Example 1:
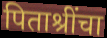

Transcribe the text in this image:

पिताश्रींचा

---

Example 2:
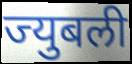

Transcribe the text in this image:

ज्युबली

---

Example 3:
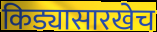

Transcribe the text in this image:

किड्यासारखेच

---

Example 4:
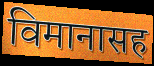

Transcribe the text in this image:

विमानासह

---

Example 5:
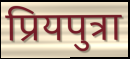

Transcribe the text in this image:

प्रियपुत्रा